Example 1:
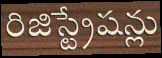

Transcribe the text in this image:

రిజిస్ట్రేషన్లు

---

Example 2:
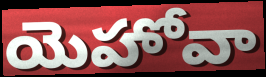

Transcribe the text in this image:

యెహోవా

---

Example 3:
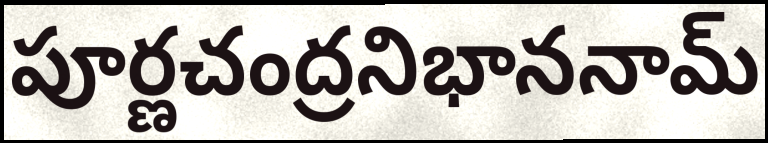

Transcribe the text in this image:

పూర్ణచంద్రనిభాననామ్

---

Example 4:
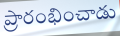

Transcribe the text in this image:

ప్రారంభించాడు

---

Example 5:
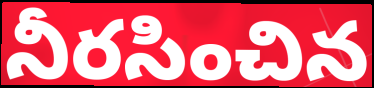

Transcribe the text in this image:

నీరసించిన